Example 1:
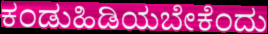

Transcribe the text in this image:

ಕಂಡುಹಿಡಿಯಬೇಕೆಂದು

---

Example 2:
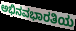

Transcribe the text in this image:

ಅಭಿನವಭಾರತಿಯ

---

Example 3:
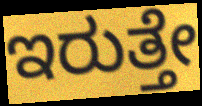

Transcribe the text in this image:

ಇರುತ್ತೇ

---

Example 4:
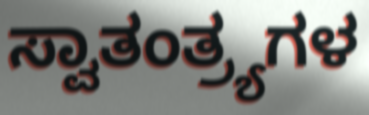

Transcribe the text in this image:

ಸ್ವಾತಂತ್ರ್ಯಗಳ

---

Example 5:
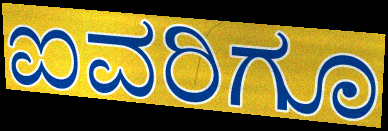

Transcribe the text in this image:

ಐವರಿಗೂ